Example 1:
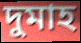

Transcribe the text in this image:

দুমাহ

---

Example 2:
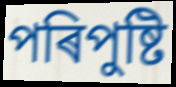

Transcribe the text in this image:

পৰিপুষ্টি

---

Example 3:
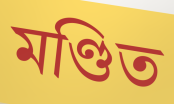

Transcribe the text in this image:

মণ্ডিত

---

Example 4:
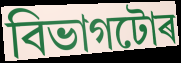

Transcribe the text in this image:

বিভাগটোৰ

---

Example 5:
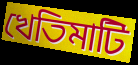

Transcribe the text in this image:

খেতিমাটি